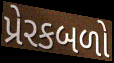
પ્રેરકબળો